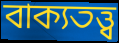
বাক্যতত্ত্ব